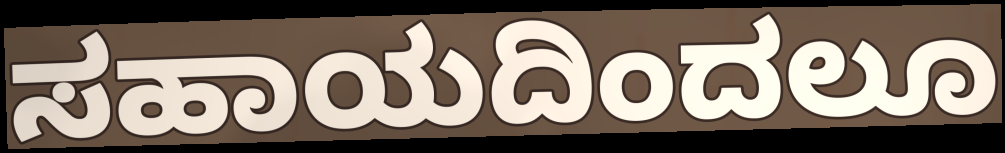
ಸಹಾಯದಿಂದಲೂ